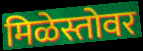
मिळेस्तोवर